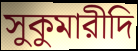
সুকুমারীদি